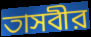
তাসবীর